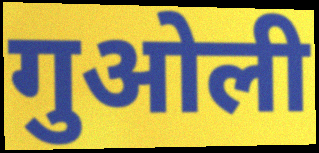
गुओली